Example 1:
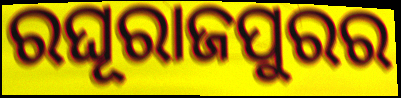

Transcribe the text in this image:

ରଘୂରାଜପୁରର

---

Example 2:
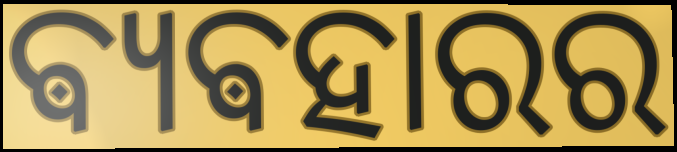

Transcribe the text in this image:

ଵ୍ୟଵହାରର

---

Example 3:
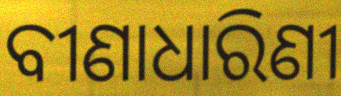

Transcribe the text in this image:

ବୀଣାଧାରିଣୀ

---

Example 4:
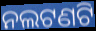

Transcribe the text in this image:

ନଲଟଣଟି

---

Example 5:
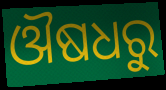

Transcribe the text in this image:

ଔଷଧରୁ